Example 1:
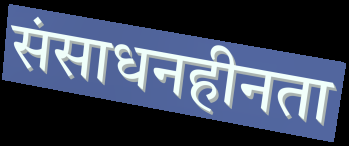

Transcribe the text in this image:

संसाधनहीनता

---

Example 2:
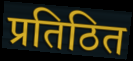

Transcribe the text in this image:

प्रतिठित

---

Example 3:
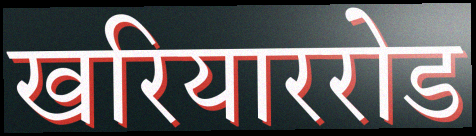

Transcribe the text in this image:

खरियाररोड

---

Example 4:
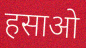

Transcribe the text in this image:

हसाओ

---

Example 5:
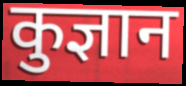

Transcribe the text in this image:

कुज्ञान